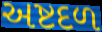
અષ્ટદળ